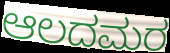
ಆಲದಮರ